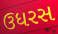
ઉધરસ